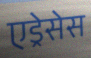
एड्रेसेस